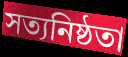
সত্যনিষ্ঠতা